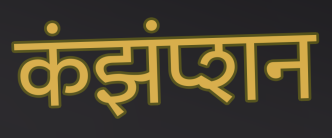
कंझंप्शन